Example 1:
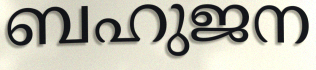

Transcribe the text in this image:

ബഹുജന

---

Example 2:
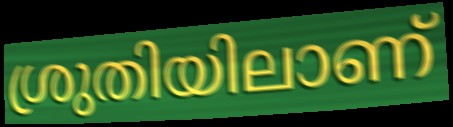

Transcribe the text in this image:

ശ്രുതിയിലാണ്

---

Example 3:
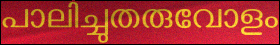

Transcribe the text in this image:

പാലിച്ചുതരുവോളം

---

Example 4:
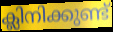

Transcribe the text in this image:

ക്ലിനിക്കുണ്ട്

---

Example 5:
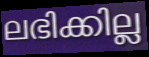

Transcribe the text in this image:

ലഭിക്കില്ല